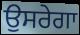
ਉਸਰੇਗਾ